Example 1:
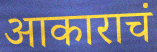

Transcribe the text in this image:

आकाराचं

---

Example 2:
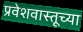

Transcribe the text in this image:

प्रवेशवास्तूच्या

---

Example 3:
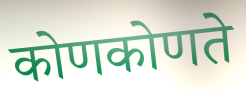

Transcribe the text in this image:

कोणकोणते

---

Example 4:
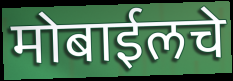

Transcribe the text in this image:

मोबाईलचे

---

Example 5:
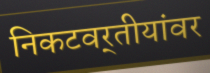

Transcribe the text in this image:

निकटवर्तीयांवर